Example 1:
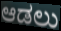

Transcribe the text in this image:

ಆಡಲು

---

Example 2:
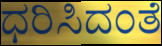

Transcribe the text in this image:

ಧರಿಸಿದಂತೆ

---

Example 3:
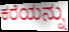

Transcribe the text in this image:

ಕರೆಯನ್ನು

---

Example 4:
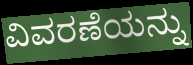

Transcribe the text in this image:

ವಿವರಣೆಯನ್ನು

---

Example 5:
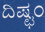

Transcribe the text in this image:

ದಿಷ್ಟಂ